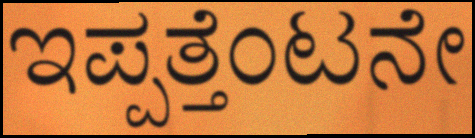
ಇಪ್ಪತ್ತೆಂಟನೇ